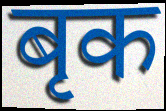
बृक